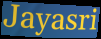
Jayasri